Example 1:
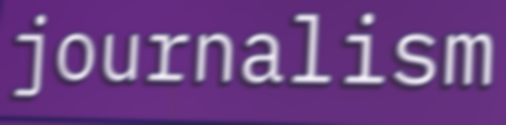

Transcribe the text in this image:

journalism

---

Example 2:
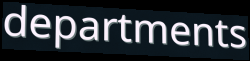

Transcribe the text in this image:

departments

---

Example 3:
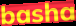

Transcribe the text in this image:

basha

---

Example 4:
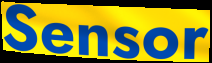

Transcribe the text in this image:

Sensor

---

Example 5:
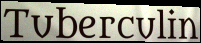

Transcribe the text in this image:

Tuberculin